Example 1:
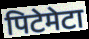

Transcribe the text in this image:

पिटेमेटा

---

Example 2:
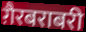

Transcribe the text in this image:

ग़ैरबराबरी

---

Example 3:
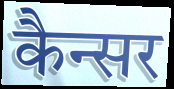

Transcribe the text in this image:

कैन्सर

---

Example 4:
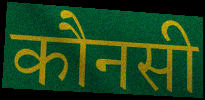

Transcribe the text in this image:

कौनसी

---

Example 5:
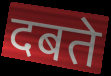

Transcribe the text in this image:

दबते